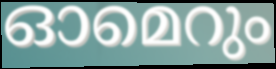
ഓമെറും